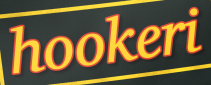
hookeri